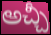
అచ్చీ